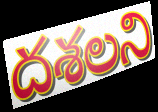
దశలని